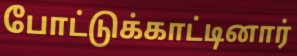
போட்டுக்காட்டினார்